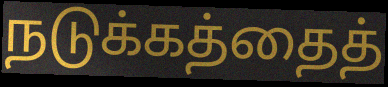
நடுக்கத்தைத்